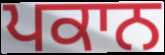
ਪਕਾਨ